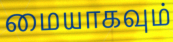
மையாகவும்